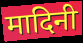
मादिनी